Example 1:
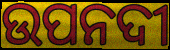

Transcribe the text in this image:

ଉପନଦୀ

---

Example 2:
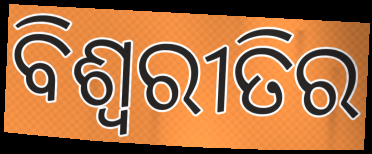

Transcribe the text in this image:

ବିଶ୍ଵରୀତିର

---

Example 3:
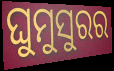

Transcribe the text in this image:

ଘୁମୁସୁରର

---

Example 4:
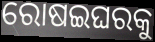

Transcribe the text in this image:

ରୋଷଇଘରକୁ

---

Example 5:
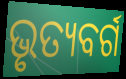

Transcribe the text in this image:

ଭୃତ୍ୟବର୍ଗ